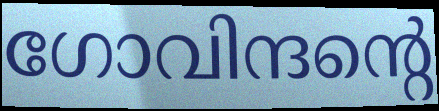
ഗോവിന്ദന്റെ